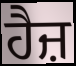
ਹੈਜ਼